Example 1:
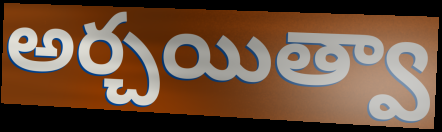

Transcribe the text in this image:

అర్చయిత్వా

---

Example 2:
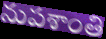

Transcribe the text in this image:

నుపశాంతి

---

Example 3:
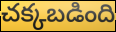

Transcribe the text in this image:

చక్కబడింది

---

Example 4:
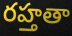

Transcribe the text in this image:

రహ్తతా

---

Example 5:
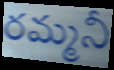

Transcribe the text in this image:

రమ్మనీ